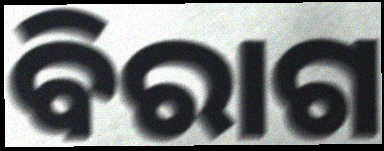
ବିରାଗ